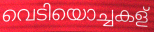
വെടിയൊച്ചകള്